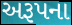
અરૂપના